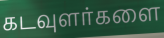
கடவுளர்களை